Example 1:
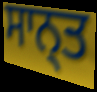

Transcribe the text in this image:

ਸਾਨ੍ਤ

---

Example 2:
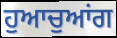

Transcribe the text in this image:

ਹੁਆਚੁਆਂਗ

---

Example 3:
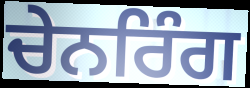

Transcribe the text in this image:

ਚੇਨਰਿੰਗ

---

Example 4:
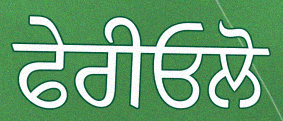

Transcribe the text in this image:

ਫੇਰੀਓਲੋ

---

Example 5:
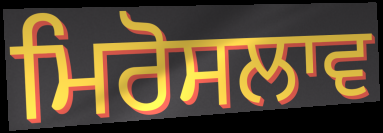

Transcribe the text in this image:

ਮਿਰੋਸਲਾਵ